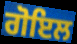
ਗੋਇਲ